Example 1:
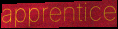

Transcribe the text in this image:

apprentice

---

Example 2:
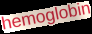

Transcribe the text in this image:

hemoglobin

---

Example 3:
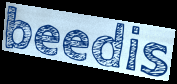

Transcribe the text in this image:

beedis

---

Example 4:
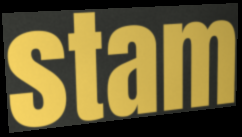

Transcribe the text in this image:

stam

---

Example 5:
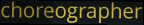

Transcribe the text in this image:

choreographer